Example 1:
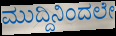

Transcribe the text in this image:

ಮುದ್ದಿನಿಂದಲೇ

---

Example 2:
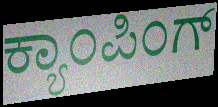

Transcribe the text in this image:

ಕ್ಯಾಂಪಿಂಗ್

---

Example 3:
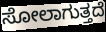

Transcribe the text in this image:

ಸೋಲಾಗುತ್ತದೆ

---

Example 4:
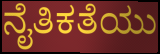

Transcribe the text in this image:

ನೈತಿಕತೆಯು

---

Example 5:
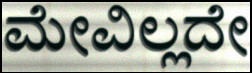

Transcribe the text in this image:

ಮೇವಿಲ್ಲದೇ